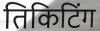
तिकिटिंग